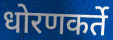
धोरणकर्ते